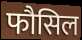
फौसिल